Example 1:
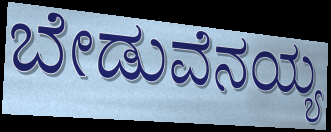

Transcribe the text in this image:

ಬೇಡುವೆನಯ್ಯ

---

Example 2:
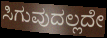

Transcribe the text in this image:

ಸಿಗುವುದಲ್ಲದೇ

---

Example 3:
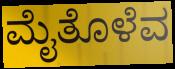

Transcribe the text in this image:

ಮೈತೊಳೆವ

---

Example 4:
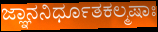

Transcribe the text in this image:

ಜ್ಞಾನನಿರ್ಧೂತಕಲ್ಮಷಾಃ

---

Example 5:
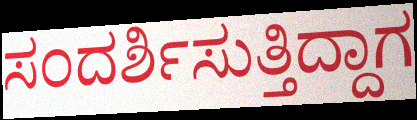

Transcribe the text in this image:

ಸಂದರ್ಶಿಸುತ್ತಿದ್ದಾಗ